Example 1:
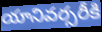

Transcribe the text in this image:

యానివర్సరీకి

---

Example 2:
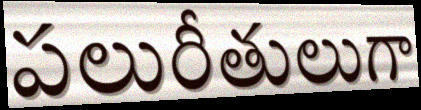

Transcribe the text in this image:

పలురీతులుగా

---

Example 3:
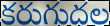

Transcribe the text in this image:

కరుగుదల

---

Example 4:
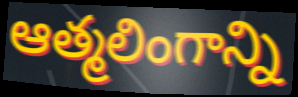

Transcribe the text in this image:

ఆత్మలింగాన్ని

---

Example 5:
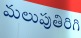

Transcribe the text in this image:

మలుపుతిరిగి